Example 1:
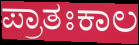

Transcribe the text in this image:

ಪ್ರಾತಃಕಾಲ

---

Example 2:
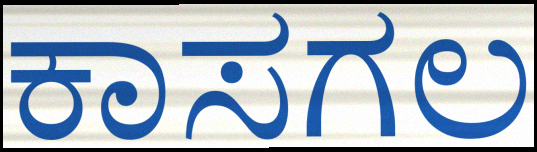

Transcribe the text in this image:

ಕಾಸಗಲ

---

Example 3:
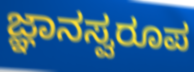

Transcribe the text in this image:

ಜ್ಞಾನಸ್ವರೂಪ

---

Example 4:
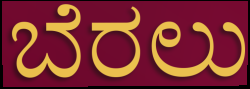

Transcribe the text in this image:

ಬೆರಲು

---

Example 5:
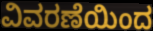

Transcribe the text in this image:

ವಿವರಣೆಯಿಂದ